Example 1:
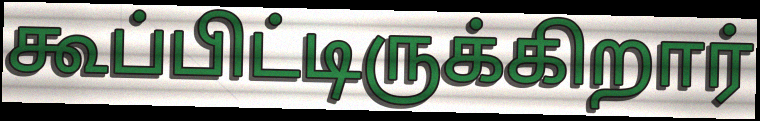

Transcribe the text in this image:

கூப்பிட்டிருக்கிறார்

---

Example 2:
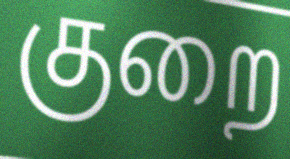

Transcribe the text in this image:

குறை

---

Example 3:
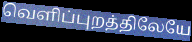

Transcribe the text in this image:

வெளிப்புறத்திலேயே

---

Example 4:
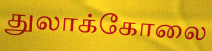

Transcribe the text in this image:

துலாக்கோலை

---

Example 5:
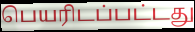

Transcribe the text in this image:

பெயரிடப்பட்டது